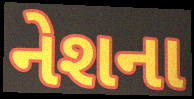
નેશના